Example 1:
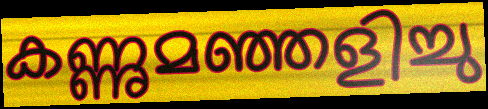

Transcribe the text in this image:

കണ്ണുമഞ്ഞളിച്ചു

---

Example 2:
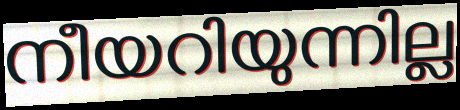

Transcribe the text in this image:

നീയറിയുന്നില്ല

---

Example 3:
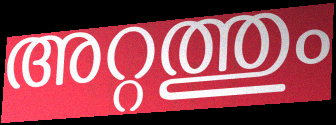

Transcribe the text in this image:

അറ്റത്തും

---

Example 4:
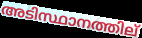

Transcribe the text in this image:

അടിസ്ഥാനത്തില്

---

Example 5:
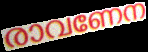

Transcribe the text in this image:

രാവണേന